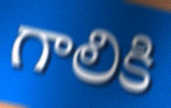
గాలికి